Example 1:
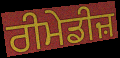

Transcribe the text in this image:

ਰੀਮੇਡੀਜ਼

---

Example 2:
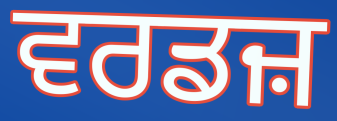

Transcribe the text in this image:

ਵਰਡਜ਼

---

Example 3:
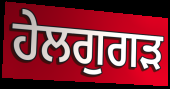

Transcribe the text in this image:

ਹੇਲਗੁਗੜ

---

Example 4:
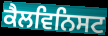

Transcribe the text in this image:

ਕੈਲਵਿਨਿਸਟ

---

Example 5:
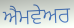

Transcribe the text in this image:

ਐਮਵੇਅਰ